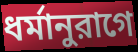
ধর্মানুরাগে